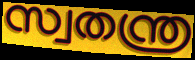
സ്വതന്ത്ര